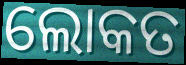
ଲୋକତ